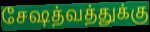
சேஷத்வத்துக்கு